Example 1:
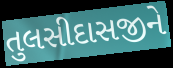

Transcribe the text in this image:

તુલસીદાસજીને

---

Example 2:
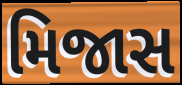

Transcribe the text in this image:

મિજાસ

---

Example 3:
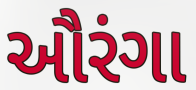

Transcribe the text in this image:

ઔરંગા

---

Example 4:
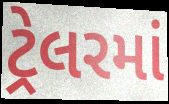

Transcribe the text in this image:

ટ્રેલરમાં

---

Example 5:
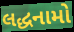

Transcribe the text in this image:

લદ્ધનામો